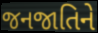
જનજાતિને